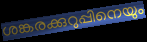
ശങ്കരക്കുറുപ്പിനെയും